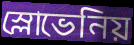
স্লোভেনিয়